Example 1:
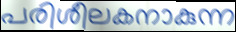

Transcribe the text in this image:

പരിശീലകനാകുന്ന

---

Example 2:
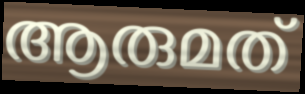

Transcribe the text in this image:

ആരുമത്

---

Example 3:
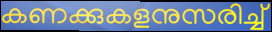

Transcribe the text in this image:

കണക്കുകളനുസരിച്ച്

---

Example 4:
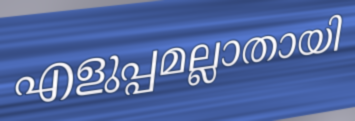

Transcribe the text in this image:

എളുപ്പമല്ലാതായി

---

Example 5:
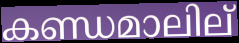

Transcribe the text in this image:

കണ്ഡമാലില്